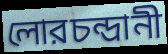
লোরচন্দ্রানী